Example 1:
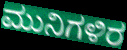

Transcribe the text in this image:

ಮುನಿಗಳಿರ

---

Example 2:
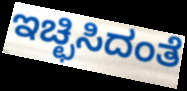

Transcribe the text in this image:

ಇಚ್ಛಿಸಿದಂತೆ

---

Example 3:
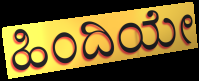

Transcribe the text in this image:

ಹಿಂದಿಯೇ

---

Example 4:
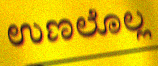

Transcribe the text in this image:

ಉಣಲೊಲ್ಲ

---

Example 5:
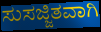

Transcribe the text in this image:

ಸುಸಜ್ಜಿತವಾಗಿ